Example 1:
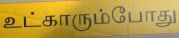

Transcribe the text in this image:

உட்காரும்போது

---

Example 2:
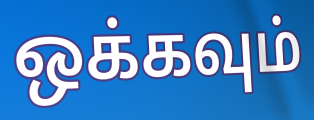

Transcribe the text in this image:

ஒக்கவும்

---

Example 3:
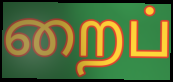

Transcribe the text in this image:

றைப்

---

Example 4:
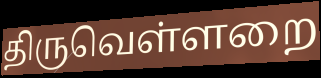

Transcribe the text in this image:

திருவெள்ளறை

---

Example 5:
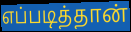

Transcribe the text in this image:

எப்படித்தான்